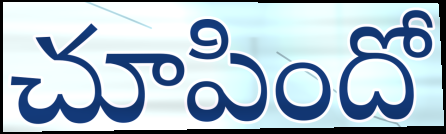
చూపిందో